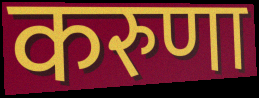
करुणा